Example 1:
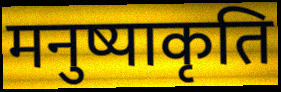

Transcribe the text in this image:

मनुष्याकृति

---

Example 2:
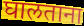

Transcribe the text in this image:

घालताना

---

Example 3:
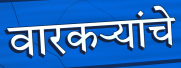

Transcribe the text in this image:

वारकऱ्यांचे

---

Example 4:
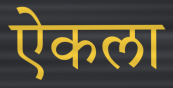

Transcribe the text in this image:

ऐकला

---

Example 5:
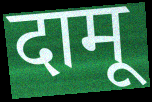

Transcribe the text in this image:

दामू